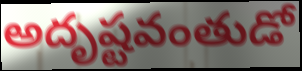
అదృష్టవంతుడో